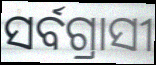
ସର୍ବଗ୍ରାସୀ